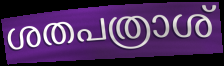
ശതപത്രാശ്